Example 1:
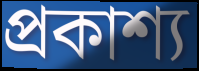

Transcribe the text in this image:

প্রকাশ্য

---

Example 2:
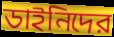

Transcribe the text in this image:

ডাইনিদের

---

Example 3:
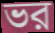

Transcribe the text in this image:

ভর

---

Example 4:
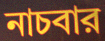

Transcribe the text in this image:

নাচবার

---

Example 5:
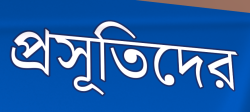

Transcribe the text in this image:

প্রসূতিদের